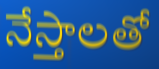
నేస్తాలతో